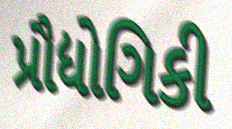
પ્રૌદ્યોગિકી